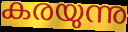
കരയുന്നു